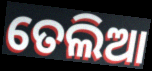
ତେଲିଆ